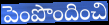
పెంపొందించి